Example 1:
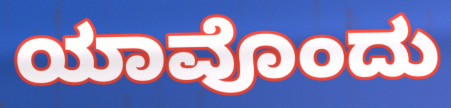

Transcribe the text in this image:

ಯಾವೊಂದು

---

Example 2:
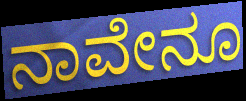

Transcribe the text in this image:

ನಾವೇನೂ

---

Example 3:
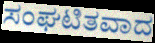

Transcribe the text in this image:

ಸಂಘಟಿತವಾದ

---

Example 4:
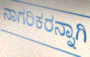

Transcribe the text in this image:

ನಾಗರಿಕರನ್ನಾಗಿ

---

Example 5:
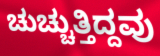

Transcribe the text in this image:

ಚುಚ್ಚುತ್ತಿದ್ದವು